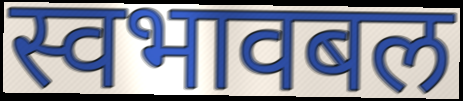
स्वभावबल